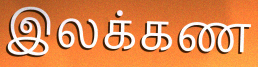
இலக்கண